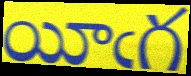
యీఁగ